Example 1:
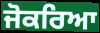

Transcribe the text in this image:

ਜੋਕਰਿਆ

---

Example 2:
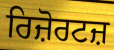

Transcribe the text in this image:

ਰਿਜ਼ੋਰਟਜ਼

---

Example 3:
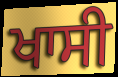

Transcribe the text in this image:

ਖਾਸੀ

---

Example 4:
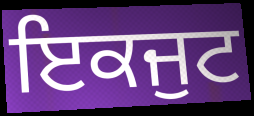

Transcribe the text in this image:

ਇਕਜੁਟ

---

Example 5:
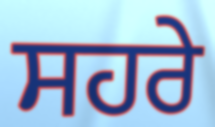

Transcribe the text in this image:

ਸਹਰੇ